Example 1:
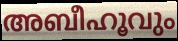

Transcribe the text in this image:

അബീഹൂവും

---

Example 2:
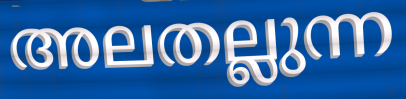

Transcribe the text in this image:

അലതല്ലുന്ന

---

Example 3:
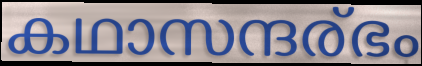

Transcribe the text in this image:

കഥാസന്ദര്ഭം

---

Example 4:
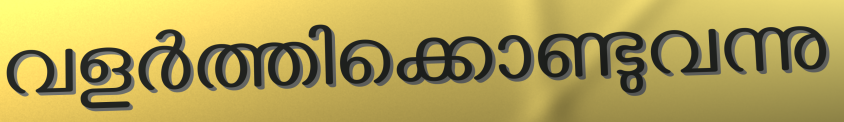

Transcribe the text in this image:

വളർത്തിക്കൊണ്ടുവന്നു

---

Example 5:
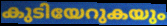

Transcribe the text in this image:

കുടിയേറുകയും